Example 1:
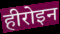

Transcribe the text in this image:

हीरोइन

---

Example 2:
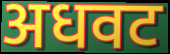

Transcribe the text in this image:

अधवट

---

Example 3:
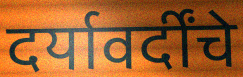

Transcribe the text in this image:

दर्यावर्दींचे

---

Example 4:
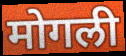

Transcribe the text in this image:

मोगली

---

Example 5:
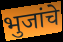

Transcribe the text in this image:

भुजांचे